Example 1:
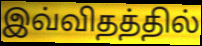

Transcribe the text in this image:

இவ்விதத்தில்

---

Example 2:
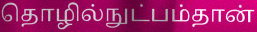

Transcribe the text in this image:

தொழில்நுட்பம்தான்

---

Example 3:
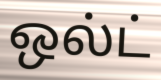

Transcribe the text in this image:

ஒல்ட்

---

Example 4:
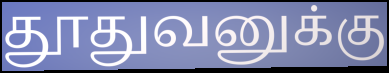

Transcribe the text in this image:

தூதுவனுக்கு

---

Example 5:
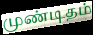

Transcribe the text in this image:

முண்டிதம்